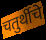
चतुर्थीचे